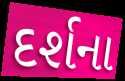
દર્શના